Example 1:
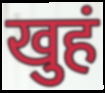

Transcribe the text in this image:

खुहं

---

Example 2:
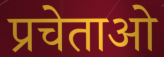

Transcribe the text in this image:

प्रचेताओ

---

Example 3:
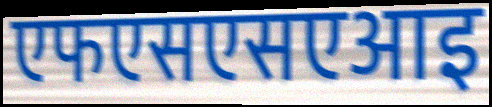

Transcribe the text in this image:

एफएसएसएआइ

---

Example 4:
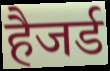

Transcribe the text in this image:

हैजर्ड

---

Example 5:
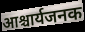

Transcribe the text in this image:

आश्चार्यजनक